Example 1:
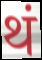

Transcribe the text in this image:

थं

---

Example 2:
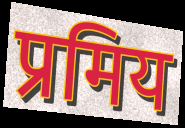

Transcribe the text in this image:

प्रमिय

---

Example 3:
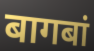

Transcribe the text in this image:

बागबां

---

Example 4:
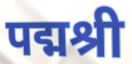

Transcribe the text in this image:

पद्मश्री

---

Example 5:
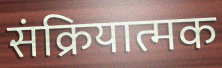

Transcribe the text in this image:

संक्रियात्मक